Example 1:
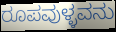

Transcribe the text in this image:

ರೂಪವುಳ್ಳವನು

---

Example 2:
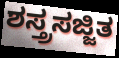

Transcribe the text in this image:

ಶಸ್ತ್ರಸಜ್ಜಿತ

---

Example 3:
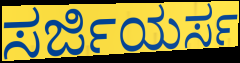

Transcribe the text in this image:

ಸರ್ಜಿಯರ್ಸ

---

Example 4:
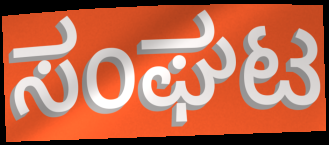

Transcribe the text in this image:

ಸಂಘಟ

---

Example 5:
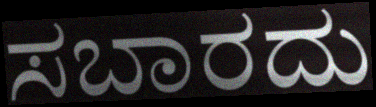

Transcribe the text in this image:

ಸಬಾರದು